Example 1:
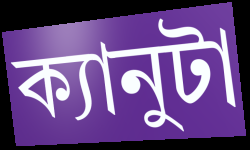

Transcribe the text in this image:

ক্যানুটা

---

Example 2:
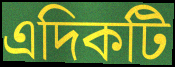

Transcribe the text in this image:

এদিকটি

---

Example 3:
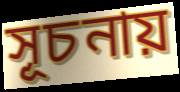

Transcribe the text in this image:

সূচনায়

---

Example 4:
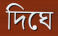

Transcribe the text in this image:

দিঘে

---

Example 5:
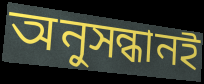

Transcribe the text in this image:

অনুসন্ধানই